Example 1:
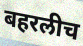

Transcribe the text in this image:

बहरलीच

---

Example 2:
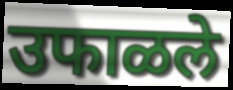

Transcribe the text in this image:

उफाळले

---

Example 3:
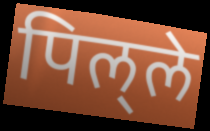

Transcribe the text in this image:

पिल्ले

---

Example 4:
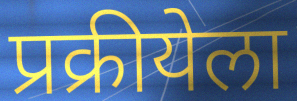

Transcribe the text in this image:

प्रक्रीयेला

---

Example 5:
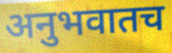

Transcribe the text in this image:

अनुभवातच